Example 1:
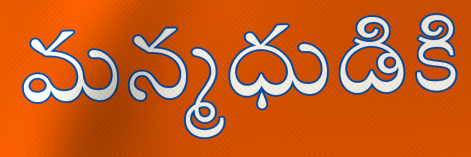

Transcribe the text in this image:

మన్మధుడికి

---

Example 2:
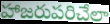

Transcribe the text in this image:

హాజరుపరిచేలా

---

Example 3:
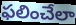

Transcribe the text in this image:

ఫలించేలా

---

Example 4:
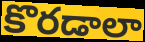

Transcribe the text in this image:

కొరడాలా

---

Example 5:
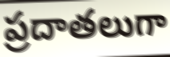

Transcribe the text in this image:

ప్రదాతలుగా